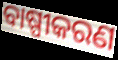
ବାଷ୍ପୀକରଣ